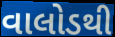
વાલોડથી